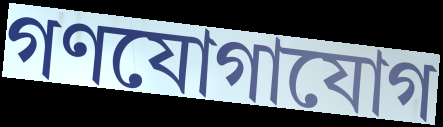
গণযোগাযোগ